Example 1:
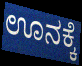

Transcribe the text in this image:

ಊನಕ್ಕೆ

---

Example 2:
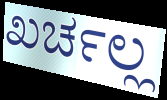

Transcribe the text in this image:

ಖರ್ಚಲ್ಲ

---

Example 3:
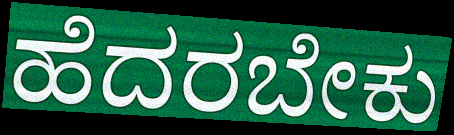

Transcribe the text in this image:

ಹೆದರಬೇಕು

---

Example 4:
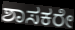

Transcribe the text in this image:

ಶಾಸಕರೇ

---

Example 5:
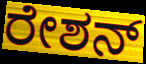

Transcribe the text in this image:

ರೇಶನ್